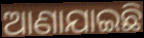
ଆଣାଯାଇଛି